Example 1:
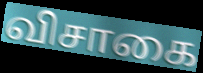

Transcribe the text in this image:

விசாகை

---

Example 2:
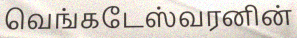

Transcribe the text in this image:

வெங்கடேஸ்வரனின்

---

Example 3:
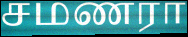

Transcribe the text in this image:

சமணரா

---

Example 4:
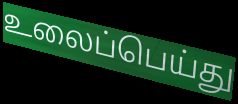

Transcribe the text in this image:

உலைப்பெய்து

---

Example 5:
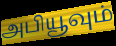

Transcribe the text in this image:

அபியூவும்